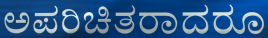
ಅಪರಿಚಿತರಾದರೂ